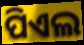
ପିଏଲ